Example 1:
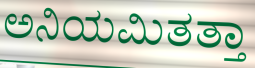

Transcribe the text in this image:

ಅನಿಯಮಿತತ್ತಾ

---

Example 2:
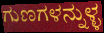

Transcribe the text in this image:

ಗುಣಗಳನ್ನುಳ್ಳ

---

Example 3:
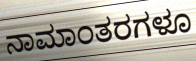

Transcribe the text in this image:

ನಾಮಾಂತರಗಳೂ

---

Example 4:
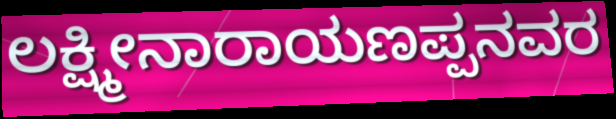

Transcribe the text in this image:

ಲಕ್ಷ್ಮೀನಾರಾಯಣಪ್ಪನವರ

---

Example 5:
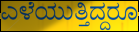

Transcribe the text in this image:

ಎಳೆಯುತ್ತಿದ್ದರೂ